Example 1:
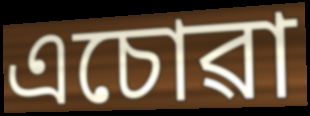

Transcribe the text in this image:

এচোৱা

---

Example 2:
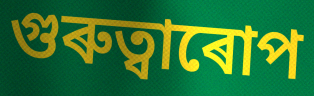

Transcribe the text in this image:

গুৰুত্বাৰোপ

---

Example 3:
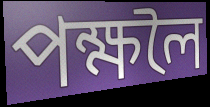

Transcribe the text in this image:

পক্ষলৈ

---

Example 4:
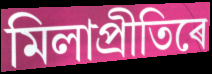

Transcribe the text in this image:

মিলাপ্ৰীতিৰে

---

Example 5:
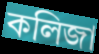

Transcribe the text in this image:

কলিজা